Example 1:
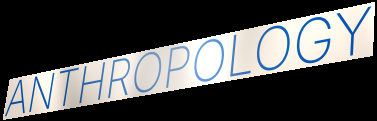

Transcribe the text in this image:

ANTHROPOLOGY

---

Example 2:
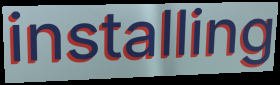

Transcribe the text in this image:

installing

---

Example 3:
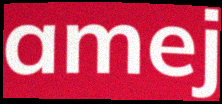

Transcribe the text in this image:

amej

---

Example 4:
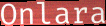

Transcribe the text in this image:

Onlara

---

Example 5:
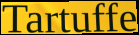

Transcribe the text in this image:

Tartuffe